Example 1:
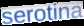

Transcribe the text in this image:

serotina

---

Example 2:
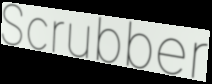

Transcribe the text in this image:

Scrubber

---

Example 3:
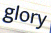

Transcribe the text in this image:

glory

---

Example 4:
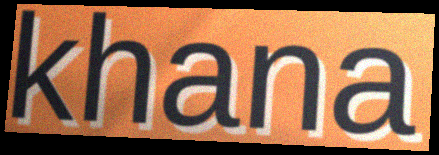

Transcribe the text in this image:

khana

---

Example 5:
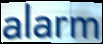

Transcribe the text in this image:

alarm